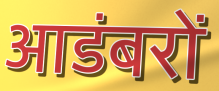
आडंबरों